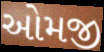
ઓમજી